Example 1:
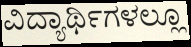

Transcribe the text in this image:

ವಿದ್ಯಾರ್ಥಿಗಳಲ್ಲೂ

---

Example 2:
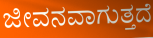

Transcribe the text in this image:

ಜೀವನವಾಗುತ್ತದೆ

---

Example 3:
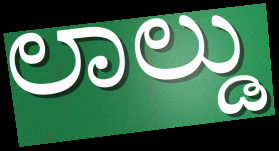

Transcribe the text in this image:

ಲಾಲ್ಡು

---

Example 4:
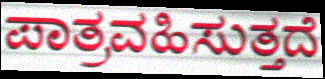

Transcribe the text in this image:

ಪಾತ್ರವಹಿಸುತ್ತದೆ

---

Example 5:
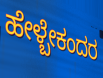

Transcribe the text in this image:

ಹೇಳ್ಬೇಕಂದರ